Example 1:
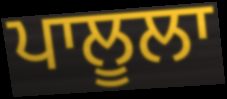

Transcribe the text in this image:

ਪਾਲੂਲਾ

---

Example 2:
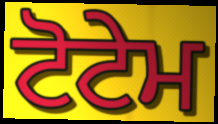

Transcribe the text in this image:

ਟੋਟੇਮ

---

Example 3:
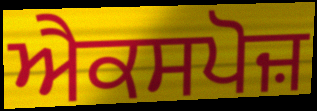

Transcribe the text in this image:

ਐਕਸਪੋਜ਼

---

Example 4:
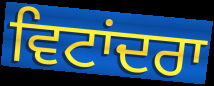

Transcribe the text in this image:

ਵਿਟਾਂਦਰਾ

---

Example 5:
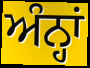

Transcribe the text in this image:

ਅੰਨ੍ਹਾਂ